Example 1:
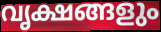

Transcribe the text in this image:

വൃക്ഷങ്ങളും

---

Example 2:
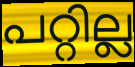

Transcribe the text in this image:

പറ്റില്ല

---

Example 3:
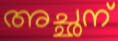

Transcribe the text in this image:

അച്ഛന്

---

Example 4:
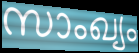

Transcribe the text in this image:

സാംഖ്യം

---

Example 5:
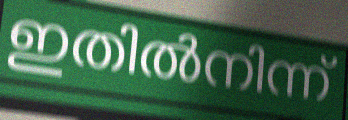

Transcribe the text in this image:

ഇതിൽനിന്ന്